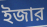
ইজার